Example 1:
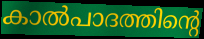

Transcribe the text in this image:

കാൽപാദത്തിന്റെ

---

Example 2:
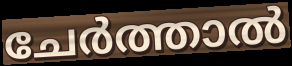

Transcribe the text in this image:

ചേർത്താൽ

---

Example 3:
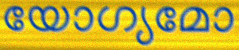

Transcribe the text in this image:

യോഗ്യമോ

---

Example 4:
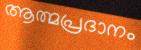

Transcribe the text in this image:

ആത്മപ്രദാനം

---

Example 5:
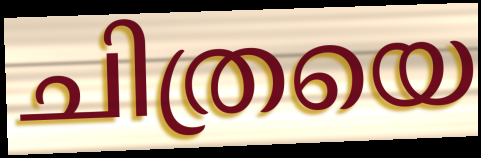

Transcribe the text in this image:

ചിത്രയെ